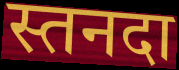
स्तनदा